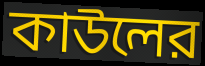
কাউলের